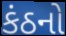
કંઠનો